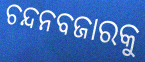
ଚନ୍ଦନବଜାରକୁ